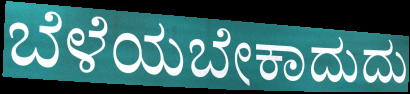
ಬೆಳೆಯಬೇಕಾದುದು